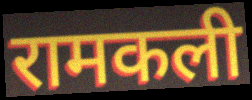
रामकली